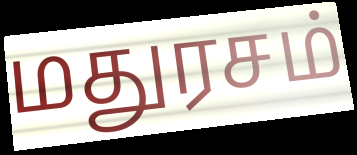
மதுரசம்